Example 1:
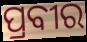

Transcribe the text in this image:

ପ୍ରବୀର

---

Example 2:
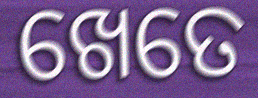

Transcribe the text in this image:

ଖେତେ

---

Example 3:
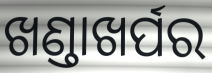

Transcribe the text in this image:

ଖଣ୍ଡାଖର୍ପର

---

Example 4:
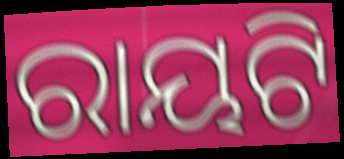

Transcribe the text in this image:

ରାୟଟି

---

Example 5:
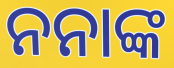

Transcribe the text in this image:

ନନାଙ୍କ